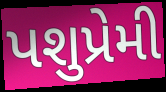
પશુપ્રેમી